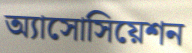
অ্যাসোসিয়েশন